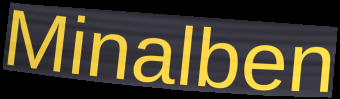
Minalben